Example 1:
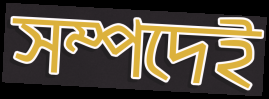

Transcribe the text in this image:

সম্পদেই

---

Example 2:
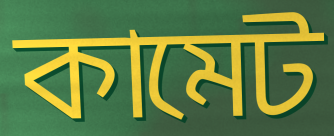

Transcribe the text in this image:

কামেট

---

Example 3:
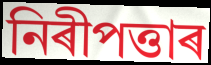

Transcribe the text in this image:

নিৰীপত্তাৰ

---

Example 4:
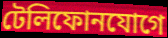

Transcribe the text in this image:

টেলিফোনযোগে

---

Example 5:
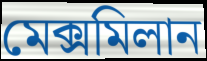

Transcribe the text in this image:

মেক্সমিলান